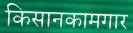
किसानकामगार